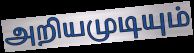
அறியமுடியும்